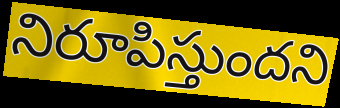
నిరూపిస్తుందని